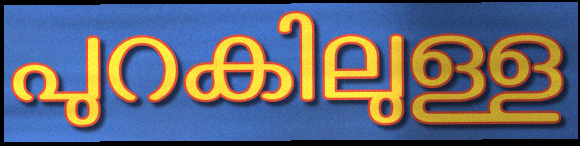
പുറകിലുള്ള